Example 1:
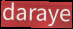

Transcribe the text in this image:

daraye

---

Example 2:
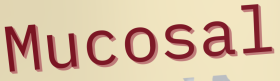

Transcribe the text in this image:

Mucosal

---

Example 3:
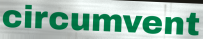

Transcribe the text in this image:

circumvent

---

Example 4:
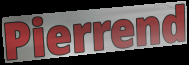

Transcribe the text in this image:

Pierrend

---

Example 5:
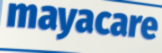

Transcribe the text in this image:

mayacare